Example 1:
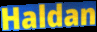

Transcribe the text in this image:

Haldan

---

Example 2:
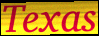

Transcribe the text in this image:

Texas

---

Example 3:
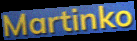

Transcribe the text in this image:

Martinko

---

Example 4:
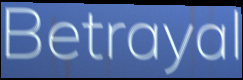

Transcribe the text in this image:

Betrayal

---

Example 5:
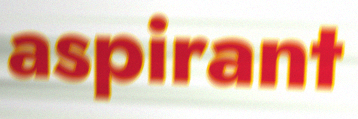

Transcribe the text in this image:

aspirant